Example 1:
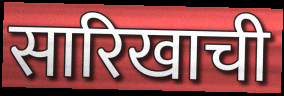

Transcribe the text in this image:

सारिखाची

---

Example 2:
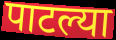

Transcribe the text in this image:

पाटल्या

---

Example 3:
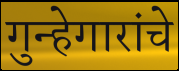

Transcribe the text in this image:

गुन्हेगारांचे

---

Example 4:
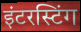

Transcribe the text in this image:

इंटरस्टिंग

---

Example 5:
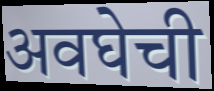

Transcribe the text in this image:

अवघेची